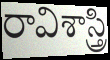
రావిశాస్త్రి